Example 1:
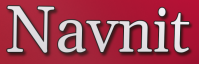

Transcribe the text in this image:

Navnit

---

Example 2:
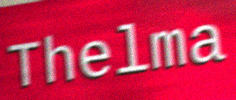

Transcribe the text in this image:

Thelma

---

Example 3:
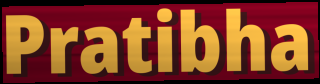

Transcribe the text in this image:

Pratibha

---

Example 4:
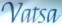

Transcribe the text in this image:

Vatsa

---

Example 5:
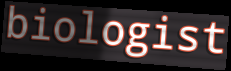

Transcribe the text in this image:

biologist